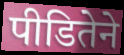
पीडितेने